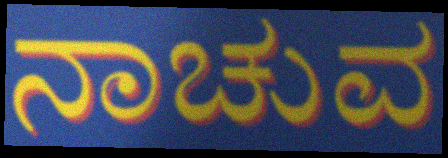
ನಾಚುವ